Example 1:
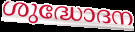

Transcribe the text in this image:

ശുദ്ധോദന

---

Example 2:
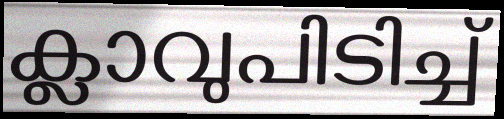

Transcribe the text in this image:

ക്ലാവുപിടിച്ച്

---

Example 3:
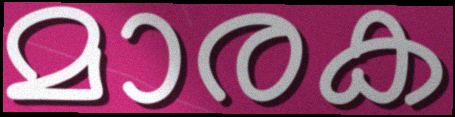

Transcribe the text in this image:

മാരക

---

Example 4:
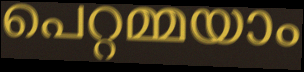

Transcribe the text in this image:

പെറ്റമ്മയാം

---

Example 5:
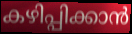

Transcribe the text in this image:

കഴിപ്പിക്കാൻ